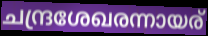
ചന്ദ്രശേഖരന്നായര്